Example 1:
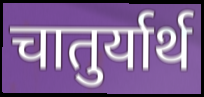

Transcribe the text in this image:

चातुर्यार्थ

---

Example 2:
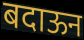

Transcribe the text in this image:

बदाऊन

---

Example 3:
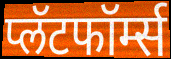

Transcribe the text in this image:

प्लॅटफॉर्म्स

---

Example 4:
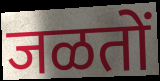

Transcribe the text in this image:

जळतों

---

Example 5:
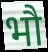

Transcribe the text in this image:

भौ